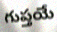
గుప్తయే